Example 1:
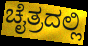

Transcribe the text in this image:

ಚೈತ್ರದಲ್ಲಿ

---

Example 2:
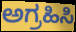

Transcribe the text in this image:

ಅಗ್ರಹಿಸಿ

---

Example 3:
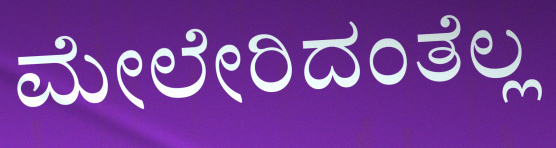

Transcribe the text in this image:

ಮೇಲೇರಿದಂತೆಲ್ಲ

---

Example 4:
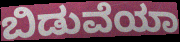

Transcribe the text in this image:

ಬಿಡುವೆಯಾ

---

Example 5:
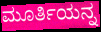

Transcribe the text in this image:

ಮೂರ್ತಿಯನ್ನ